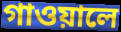
গাওয়ালে